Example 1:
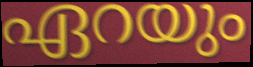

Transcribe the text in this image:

ഏറയും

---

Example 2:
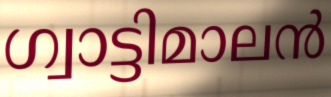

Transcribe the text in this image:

ഗ്വാട്ടിമാലൻ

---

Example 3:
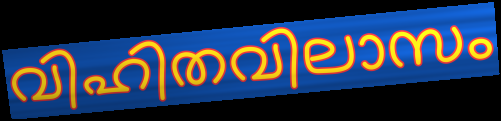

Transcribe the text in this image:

വിഹിതവിലാസം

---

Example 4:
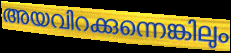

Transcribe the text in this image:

അയവിറക്കുന്നെങ്കിലും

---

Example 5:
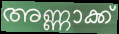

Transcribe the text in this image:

അണ്ണാക്ക്